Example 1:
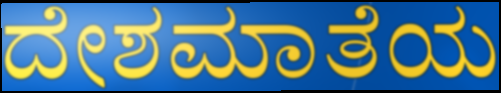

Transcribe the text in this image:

ದೇಶಮಾತೆಯ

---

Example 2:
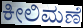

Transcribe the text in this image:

ಕೀಲಿಮಣೆ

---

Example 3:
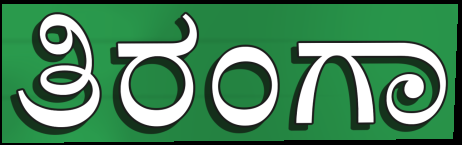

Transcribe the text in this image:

ತಿರಂಗಾ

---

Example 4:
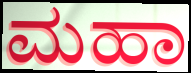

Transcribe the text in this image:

ಮಹಾ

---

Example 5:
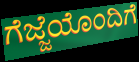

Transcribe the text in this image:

ಗೆಜ್ಜೆಯೊಂದಿಗೆ